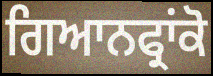
ਗਿਆਨਫ੍ਰਾਂਕੋ